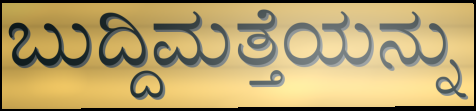
ಬುದ್ದಿಮತ್ತೆಯನ್ನು